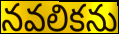
నవలికను